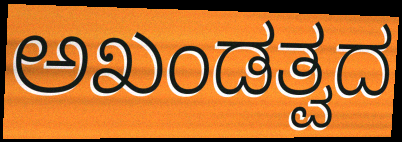
ಅಖಂಡತ್ವದ